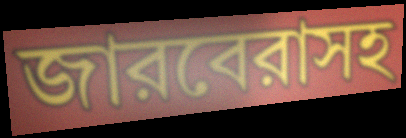
জারবেরাসহ